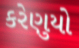
કરેણુયો